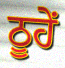
ਠੂਹੇਂ